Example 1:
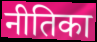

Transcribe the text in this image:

नीतिका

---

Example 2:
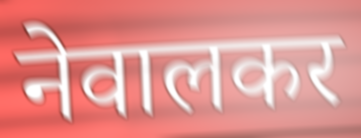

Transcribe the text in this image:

नेवालकर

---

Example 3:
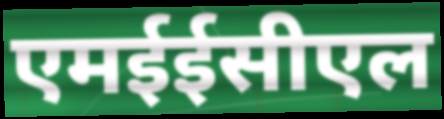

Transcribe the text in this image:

एमईईसीएल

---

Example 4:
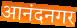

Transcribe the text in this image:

आनंदनगर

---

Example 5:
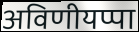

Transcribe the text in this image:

अविणीयप्पा